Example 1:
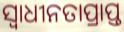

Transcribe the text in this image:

ସ୍ବାଧୀନତାପ୍ରାପ୍ତ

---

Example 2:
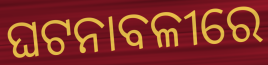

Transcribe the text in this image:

ଘଟନାବଳୀରେ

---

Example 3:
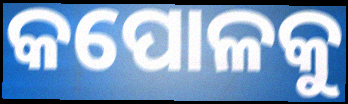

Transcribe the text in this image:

କପୋଳକୁ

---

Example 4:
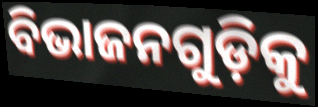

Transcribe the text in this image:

ବିଭାଜନଗୁଡ଼ିକୁ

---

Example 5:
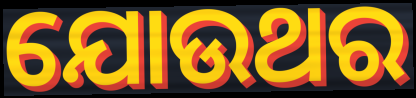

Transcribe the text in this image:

ଯୋଉଥର